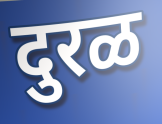
दुरळ